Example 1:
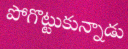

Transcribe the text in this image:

పోగొట్టుకున్నాడు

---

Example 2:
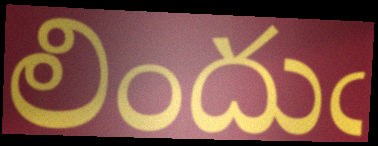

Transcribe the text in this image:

లిందుఁ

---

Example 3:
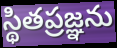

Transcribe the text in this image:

స్థితప్రజ్ఞను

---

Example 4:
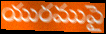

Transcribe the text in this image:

యురముపై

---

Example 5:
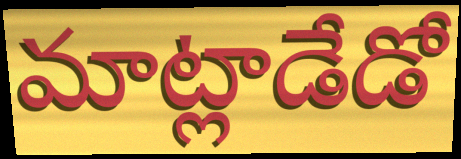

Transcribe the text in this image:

మాట్లాడేడో